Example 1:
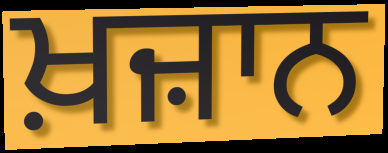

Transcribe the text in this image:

ਖ਼ਜ਼ਾਨ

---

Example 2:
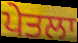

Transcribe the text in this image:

ਪੇਤਲਾ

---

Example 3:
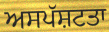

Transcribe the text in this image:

ਅਸਪੱਸ਼ਟਤਾ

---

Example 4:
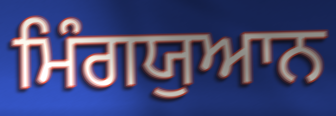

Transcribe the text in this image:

ਮਿੰਗਯੁਆਨ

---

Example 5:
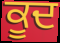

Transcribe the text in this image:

ਕੂਦ